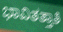
ಭಾವಿತತ್ತಾತಿ